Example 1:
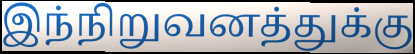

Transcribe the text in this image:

இந்நிறுவனத்துக்கு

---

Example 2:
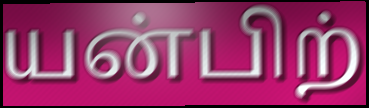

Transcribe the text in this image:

யன்பிற்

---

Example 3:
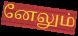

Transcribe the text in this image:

னேலும்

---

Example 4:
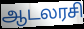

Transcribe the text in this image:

ஆடலரசி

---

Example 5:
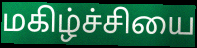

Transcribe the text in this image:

மகிழ்ச்சியை